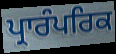
ਪ੍ਰਾਰੰਪਰਿਕ